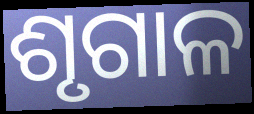
ଶୃଗାଳ